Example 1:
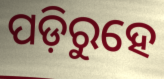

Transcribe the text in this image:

ପଡ଼ିରୁହେ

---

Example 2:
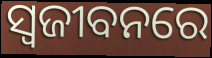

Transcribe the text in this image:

ସ୍ଵଜୀବନରେ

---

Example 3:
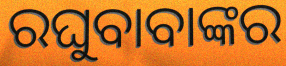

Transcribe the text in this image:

ରଘୁବାବାଙ୍କର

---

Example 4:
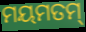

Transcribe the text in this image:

ମୟମତମ୍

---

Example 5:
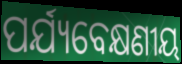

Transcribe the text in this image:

ପର୍ଯ୍ୟବେକ୍ଷଣୀୟ